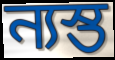
ন্যস্ত